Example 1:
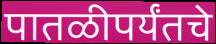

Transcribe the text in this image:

पातळीपर्यंतचे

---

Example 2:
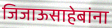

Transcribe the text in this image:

जिजाऊसाहेबांना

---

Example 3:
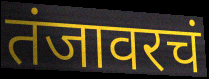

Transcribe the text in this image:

तंजावरचं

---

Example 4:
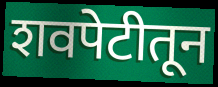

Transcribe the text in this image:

शवपेटीतून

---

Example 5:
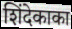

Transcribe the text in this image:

शिंदेकाका